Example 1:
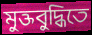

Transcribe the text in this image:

মুক্তবুদ্ধিতে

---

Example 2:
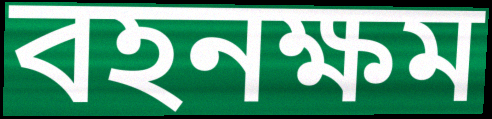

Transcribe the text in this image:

বহনক্ষম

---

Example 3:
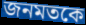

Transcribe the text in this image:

জনমতকে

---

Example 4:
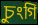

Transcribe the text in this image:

চুংগি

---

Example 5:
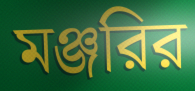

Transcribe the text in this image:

মঞ্জরির